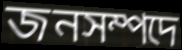
জনসম্পদে